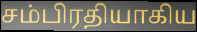
சம்பிரதியாகிய